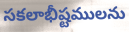
సకలాభీష్టములను